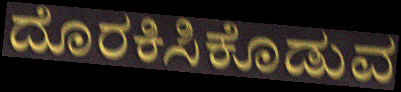
ದೊರಕಿಸಿಕೊಡುವ